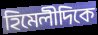
হিমেলীদিকে